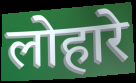
लोहारे